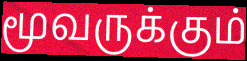
மூவருக்கும்